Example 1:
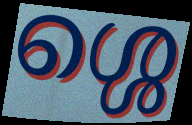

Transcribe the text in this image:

ശ്ശെ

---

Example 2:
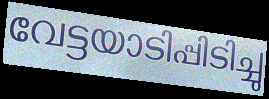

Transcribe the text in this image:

വേട്ടയാടിപ്പിടിച്ചു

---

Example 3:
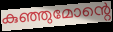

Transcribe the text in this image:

കുഞ്ഞുമോന്റെ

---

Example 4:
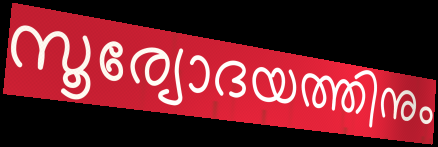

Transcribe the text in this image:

സൂര്യോദയത്തിനും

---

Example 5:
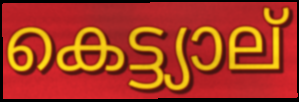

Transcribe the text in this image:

കെട്ട്യാല്